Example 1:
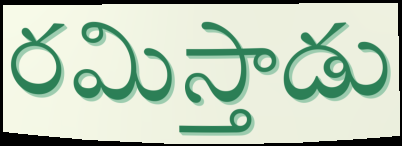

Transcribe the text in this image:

రమిస్తాడు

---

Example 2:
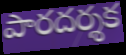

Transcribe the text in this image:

పారదర్శక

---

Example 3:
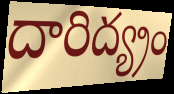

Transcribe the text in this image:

దారిద్య్రం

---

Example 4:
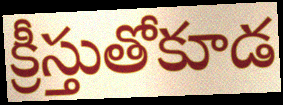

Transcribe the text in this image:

క్రీస్తుతోకూడ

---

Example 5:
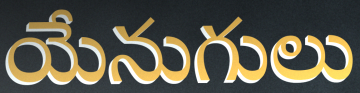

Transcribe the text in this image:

యేనుగులు